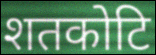
शतकोटि